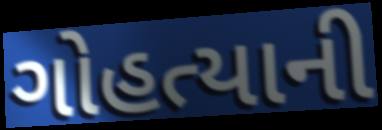
ગોહત્યાની